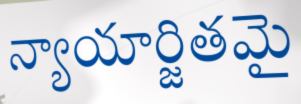
న్యాయార్జితమై